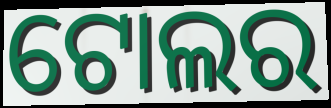
ଟୋଲର